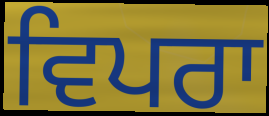
ਵਿਪਰਾ